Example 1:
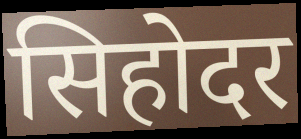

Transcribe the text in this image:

सिहोदर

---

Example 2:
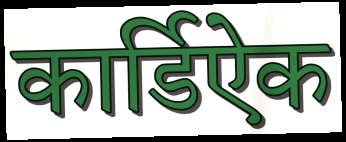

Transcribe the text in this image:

कार्डिऐक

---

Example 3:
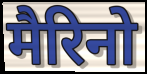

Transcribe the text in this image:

मैरिनो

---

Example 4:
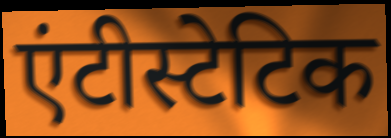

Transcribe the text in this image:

एंटीस्टेटिक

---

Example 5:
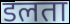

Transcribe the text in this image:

डलता